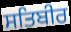
ਸਤਿਬੀਰ